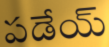
పడేయ్